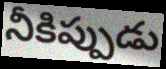
నీకిప్పుడు